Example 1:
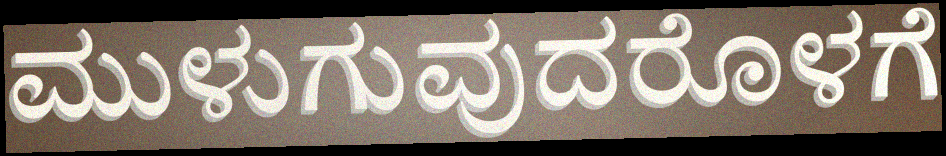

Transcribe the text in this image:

ಮುಳುಗುವುದರೊಳಗೆ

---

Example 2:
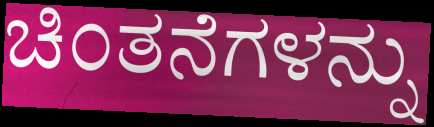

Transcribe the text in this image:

ಚಿಂತನೆಗಳನ್ನು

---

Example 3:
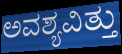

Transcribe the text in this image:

ಅವಶ್ಯವಿತ್ತು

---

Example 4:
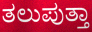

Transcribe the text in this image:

ತಲುಪುತ್ತಾ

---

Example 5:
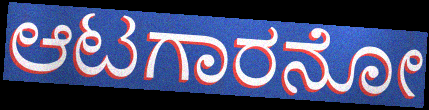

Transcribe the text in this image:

ಆಟಗಾರನೋ